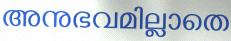
അനുഭവമില്ലാതെ